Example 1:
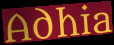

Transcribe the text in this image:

Adhia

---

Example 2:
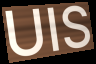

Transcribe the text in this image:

UIS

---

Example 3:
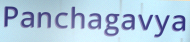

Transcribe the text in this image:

Panchagavya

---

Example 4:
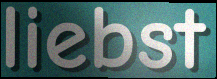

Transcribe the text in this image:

liebst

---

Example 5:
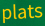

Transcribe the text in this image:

plats